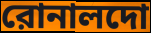
রোনালদো